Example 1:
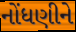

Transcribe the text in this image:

નોંધણીને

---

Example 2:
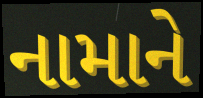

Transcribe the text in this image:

નામાને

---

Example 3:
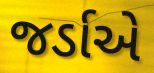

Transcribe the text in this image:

જર્ડાએ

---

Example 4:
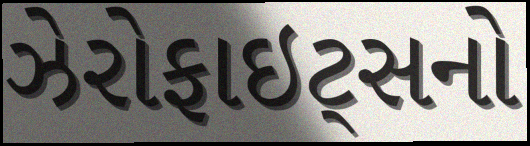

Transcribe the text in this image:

ઝેરોફાઇટ્સનો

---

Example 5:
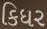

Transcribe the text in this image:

કિધર